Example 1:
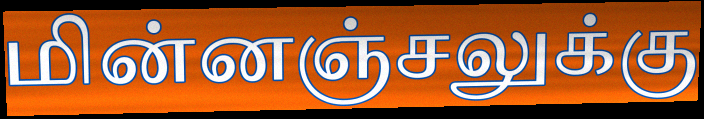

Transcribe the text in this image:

மின்னஞ்சலுக்கு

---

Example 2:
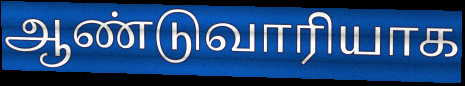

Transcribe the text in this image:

ஆண்டுவாரியாக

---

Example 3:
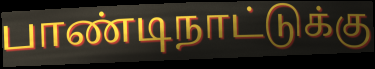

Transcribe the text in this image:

பாண்டிநாட்டுக்கு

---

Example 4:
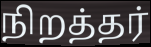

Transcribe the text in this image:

நிறத்தர்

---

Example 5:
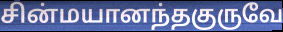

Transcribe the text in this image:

சின்மயானந்தகுருவே